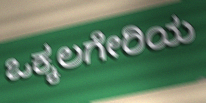
ಒಕ್ಕಲಗೇರಿಯ